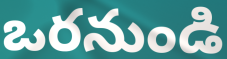
ఒరనుండి